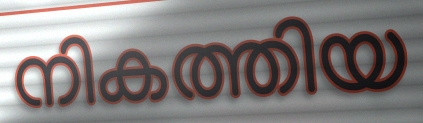
നികത്തിയ